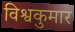
विश्वकुमार